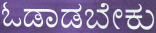
ಓಡಾಡಬೇಕು